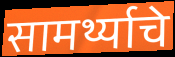
सामर्थ्याचे